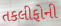
તકલીફોની